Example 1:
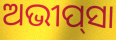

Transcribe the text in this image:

ଅଭୀପ୍‌ସା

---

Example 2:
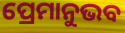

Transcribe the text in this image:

ପ୍ରେମାନୁଭବ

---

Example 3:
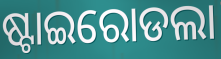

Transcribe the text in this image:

ଷ୍ଟାଇରୋଡଲା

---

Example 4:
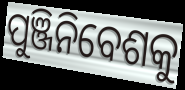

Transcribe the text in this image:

ପୁଞ୍ଜିନିବେଶକୁ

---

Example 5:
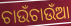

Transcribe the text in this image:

ଚାଉଁଚାଉଁଆ